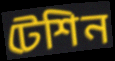
টেশিন